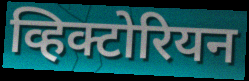
व्हिक्टोरियन